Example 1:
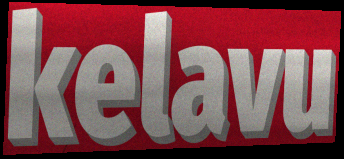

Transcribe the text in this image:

kelavu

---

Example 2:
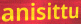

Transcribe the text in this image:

anisittu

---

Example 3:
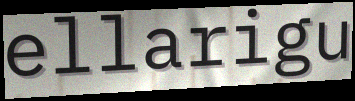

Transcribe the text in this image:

ellarigu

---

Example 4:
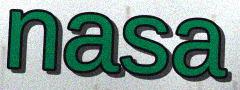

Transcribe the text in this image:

nasa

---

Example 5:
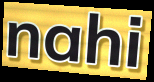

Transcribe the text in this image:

nahi